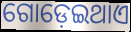
ଗୋଡ଼େଇଥାଏ